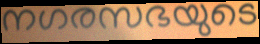
നഗരസഭയുടെ